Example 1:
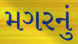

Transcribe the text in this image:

મગરનું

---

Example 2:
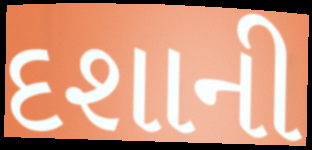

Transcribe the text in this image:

દશાની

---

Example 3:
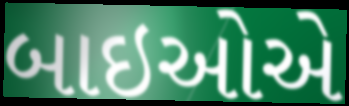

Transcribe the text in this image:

બાઇઓએ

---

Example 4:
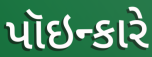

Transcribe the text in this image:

પૉઇન્કારે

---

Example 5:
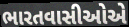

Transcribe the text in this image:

ભારતવાસીઓએ